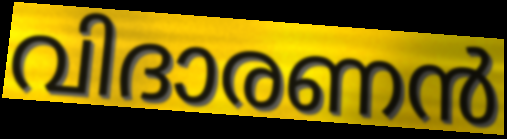
വിദാരണൻ